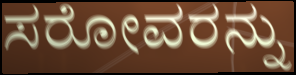
ಸರೋವರನ್ನು